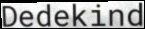
Dedekind